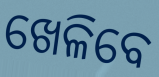
ଖେଳିବେ